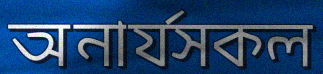
অনাৰ্যসকল